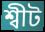
শ্বীট